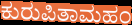
ಕುರುಪಿತಾಮಹಂ